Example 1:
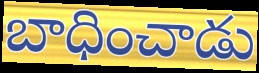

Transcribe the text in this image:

బాధించాడు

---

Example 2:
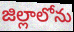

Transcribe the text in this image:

జిల్లాలోను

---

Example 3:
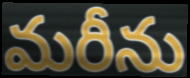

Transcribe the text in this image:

మరీను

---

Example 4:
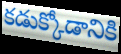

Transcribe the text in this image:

కడుక్కోడానికి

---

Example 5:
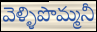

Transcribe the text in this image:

వెళ్ళిపొమ్మనీ